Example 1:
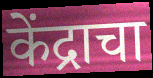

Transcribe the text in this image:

केंद्राचा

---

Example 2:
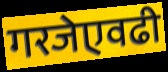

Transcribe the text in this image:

गरजेएवढी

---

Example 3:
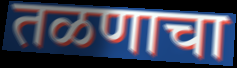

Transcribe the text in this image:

तळणाचा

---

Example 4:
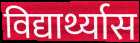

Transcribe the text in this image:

विद्यार्थ्यास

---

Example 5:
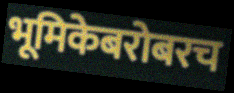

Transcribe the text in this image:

भूमिकेबरोबरच